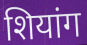
शियांग